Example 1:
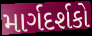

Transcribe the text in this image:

માર્ગદર્શકો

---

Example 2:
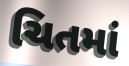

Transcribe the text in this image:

ચિતમાં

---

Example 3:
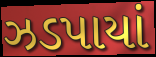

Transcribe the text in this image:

ઝડપાયાં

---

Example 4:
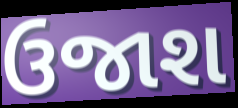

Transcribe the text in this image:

ઉજાશ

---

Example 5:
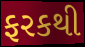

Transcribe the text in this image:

ફરકથી